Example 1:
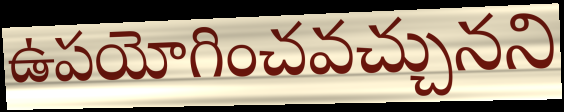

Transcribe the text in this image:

ఉపయోగించవచ్చునని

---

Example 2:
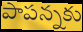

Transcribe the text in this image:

పాపన్నకు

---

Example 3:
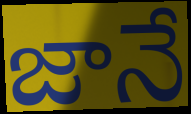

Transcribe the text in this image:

జానే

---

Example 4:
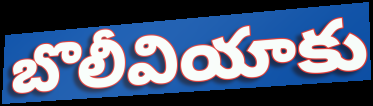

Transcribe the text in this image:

బొలీవియాకు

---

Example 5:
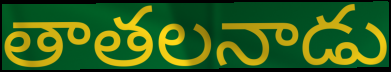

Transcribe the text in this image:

తాతలనాడు